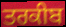
ਤਰਕੀਬ